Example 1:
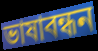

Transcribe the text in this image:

ভাষাবন্ধন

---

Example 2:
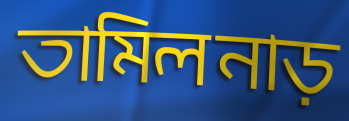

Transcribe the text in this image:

তামিলনাড়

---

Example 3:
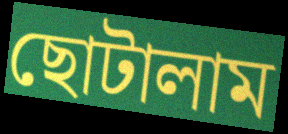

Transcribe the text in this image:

ছোটালাম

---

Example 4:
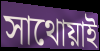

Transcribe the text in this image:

সাথোয়াই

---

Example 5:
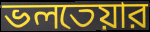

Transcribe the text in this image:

ভলতেয়ার